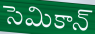
సెమికాన్